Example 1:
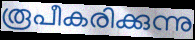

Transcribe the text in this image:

രൂപീകരിക്കുന്നു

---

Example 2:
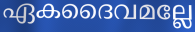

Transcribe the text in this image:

ഏകദൈവമല്ലേ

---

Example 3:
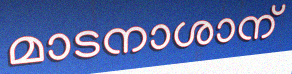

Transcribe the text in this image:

മാടനാശാന്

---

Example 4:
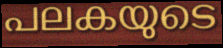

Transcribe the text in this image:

പലകയുടെ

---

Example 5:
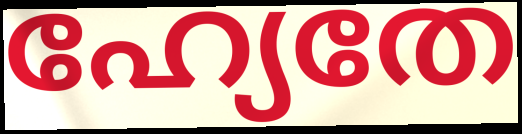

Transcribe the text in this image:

ഹ്യേതേ